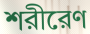
শরীরেণ